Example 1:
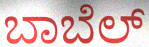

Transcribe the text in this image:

ಬಾಬೆಲ್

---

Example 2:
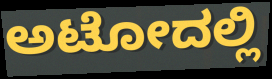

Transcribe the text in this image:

ಅಟೋದಲ್ಲಿ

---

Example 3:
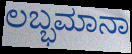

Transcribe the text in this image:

ಲಬ್ಭಮಾನಾ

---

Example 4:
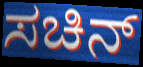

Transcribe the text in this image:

ಸಚಿನ್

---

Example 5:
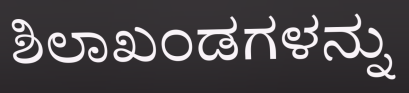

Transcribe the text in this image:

ಶಿಲಾಖಂಡಗಳನ್ನು